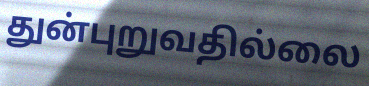
துன்புறுவதில்லை